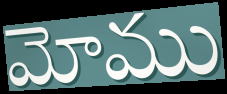
మోము